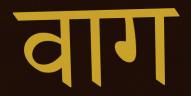
वाग